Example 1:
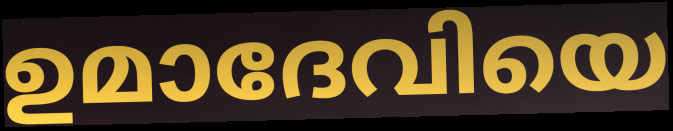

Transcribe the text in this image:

ഉമാദേവിയെ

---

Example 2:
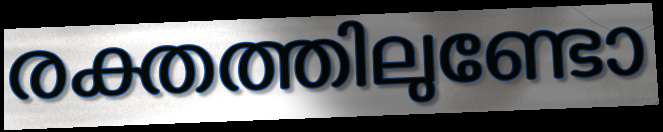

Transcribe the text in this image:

രക്തത്തിലുണ്ടോ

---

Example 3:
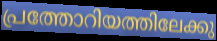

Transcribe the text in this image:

പ്രത്തോറിയത്തിലേക്കു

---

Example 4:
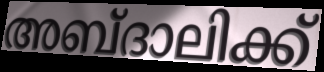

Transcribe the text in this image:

അബ്ദാലിക്ക്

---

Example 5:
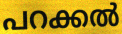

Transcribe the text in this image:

പറക്കൽ